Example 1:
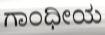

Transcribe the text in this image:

ಗಾಂಧೀಯ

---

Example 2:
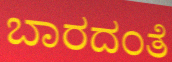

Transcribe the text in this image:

ಬಾರದಂತೆ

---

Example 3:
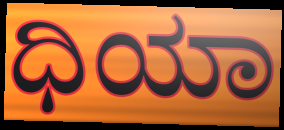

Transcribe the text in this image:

ಧಿಯಾ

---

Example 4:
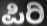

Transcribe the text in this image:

ಪಿರಿ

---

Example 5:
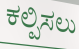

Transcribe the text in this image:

ಕಲ್ಪಿಸಲು